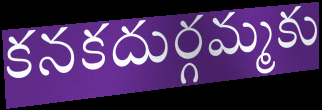
కనకదుర్గమ్మకు